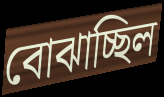
বোঝাচ্ছিল